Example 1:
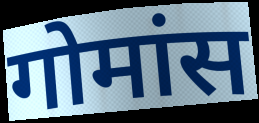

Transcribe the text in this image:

गोमांस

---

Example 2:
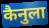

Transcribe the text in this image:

कैनुला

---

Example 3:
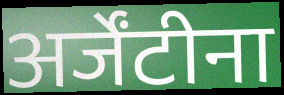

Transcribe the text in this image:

अर्जेंटीना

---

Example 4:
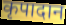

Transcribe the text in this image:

कृपादान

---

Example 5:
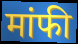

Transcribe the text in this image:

मांफी